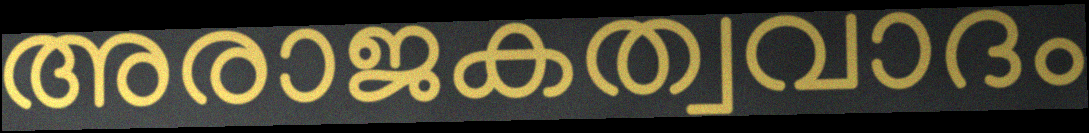
അരാജകത്വവാദം